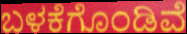
ಬಳಕೆಗೊಂಡಿವೆ